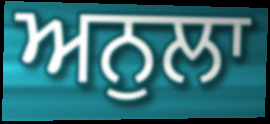
ਅਨੁਲਾ